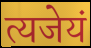
त्यजेयं